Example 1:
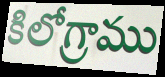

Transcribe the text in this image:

కిలోగ్రాము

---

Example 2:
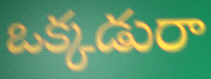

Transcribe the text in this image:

ఒక్కడురా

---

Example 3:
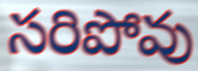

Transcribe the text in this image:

సరిపోవు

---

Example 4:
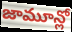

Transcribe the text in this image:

జామూన్లో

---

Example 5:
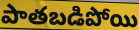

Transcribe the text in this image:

పాతబడిపోయి